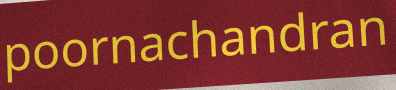
poornachandran